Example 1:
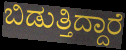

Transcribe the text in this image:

ಬಿಡುತ್ತಿದ್ದಾರೆ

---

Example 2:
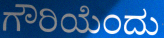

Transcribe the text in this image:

ಗೌರಿಯೆಂದು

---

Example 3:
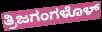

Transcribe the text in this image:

ತ್ರಿಜಗಂಗಳೊಳ್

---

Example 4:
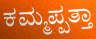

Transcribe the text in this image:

ಕಮ್ಮಪ್ಪತ್ತಾ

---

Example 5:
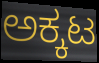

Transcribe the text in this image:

ಅಕ್ಕಟ